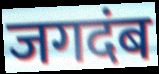
जगदंब